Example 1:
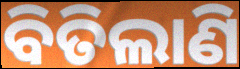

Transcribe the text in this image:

ବିତିଲାଣି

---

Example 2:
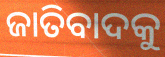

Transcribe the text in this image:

ଜାତିବାଦକୁ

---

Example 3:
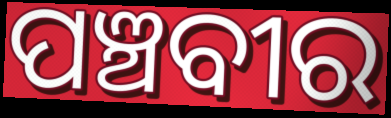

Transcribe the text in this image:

ପଞ୍ଚବୀର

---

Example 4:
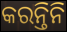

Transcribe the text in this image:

କରନ୍ତିନି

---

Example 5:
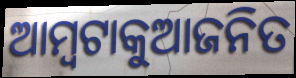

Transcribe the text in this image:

ଆମ୍ବଟାକୁଆଜନିତ